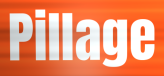
Pillage